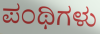
ಪಂಥಿಗಳು